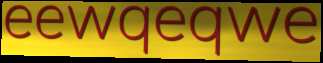
eewqeqwe